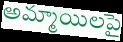
అమ్మాయిలపై